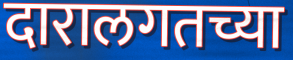
दारालगतच्या